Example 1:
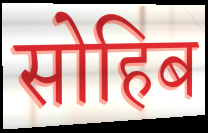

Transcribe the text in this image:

सोहिब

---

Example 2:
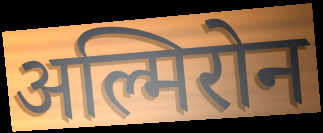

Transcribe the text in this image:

अल्मिरोन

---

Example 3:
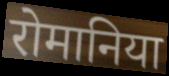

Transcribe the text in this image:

रोमानिया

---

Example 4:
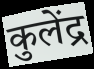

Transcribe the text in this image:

कुलेंद्र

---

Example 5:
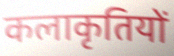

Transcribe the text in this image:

कलाकृतियों